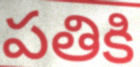
పతికి